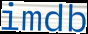
imdb